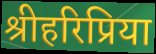
श्रीहरिप्रिया